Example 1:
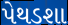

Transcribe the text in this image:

પેથડશા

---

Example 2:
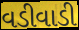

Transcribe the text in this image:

વડીવાડી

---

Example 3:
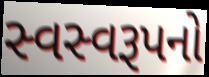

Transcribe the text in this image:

સ્વસ્વરૂપનો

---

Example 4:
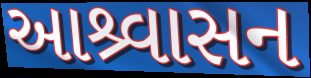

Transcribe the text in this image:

આશ્ર્વાસન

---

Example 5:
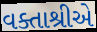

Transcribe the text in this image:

વક્તાશ્રીએ